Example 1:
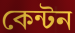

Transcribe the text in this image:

কেন্টন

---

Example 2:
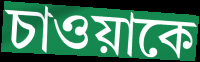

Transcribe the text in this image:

চাওয়াকে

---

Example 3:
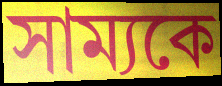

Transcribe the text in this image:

সাম্যকে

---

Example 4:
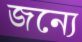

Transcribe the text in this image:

জন্যে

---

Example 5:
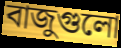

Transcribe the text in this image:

বাজুগুলো